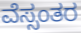
ವೆಸ್ಸಂತರ